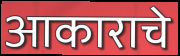
आकाराचे